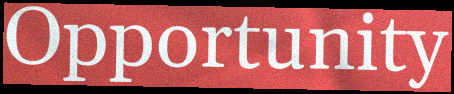
Opportunity